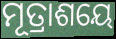
ମୂତ୍ରାଶୟେ